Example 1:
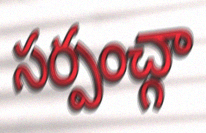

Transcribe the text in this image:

సర్పంచ్గా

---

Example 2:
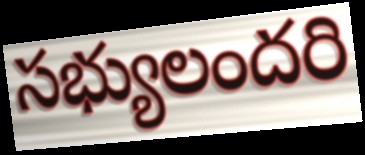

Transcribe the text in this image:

సభ్యులందరి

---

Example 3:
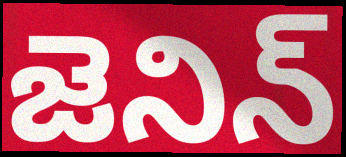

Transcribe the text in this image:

జెనిన్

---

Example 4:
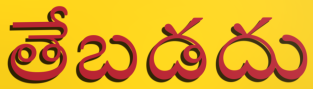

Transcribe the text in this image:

తేబడదు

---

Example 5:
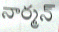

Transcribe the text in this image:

నార్మన్